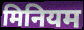
मिनियम